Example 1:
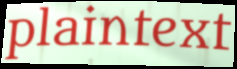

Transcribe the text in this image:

plaintext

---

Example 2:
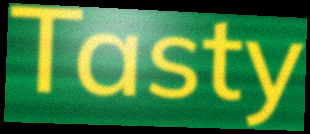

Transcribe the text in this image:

Tasty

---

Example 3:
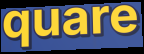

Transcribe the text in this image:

quare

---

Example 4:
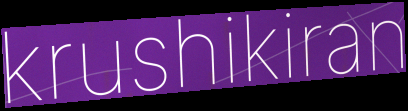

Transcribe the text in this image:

krushikiran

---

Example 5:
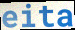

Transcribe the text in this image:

eita